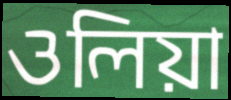
ওলিয়া